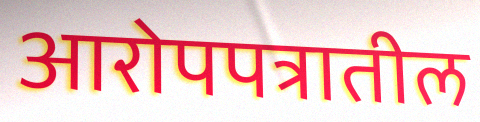
आरोपपत्रातील